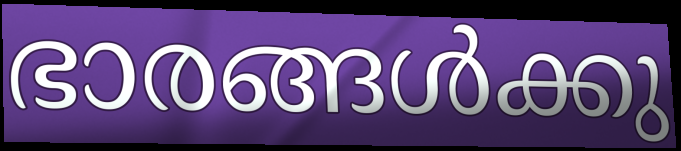
ഭാരങ്ങൾക്കു